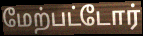
மேற்பட்டோர்